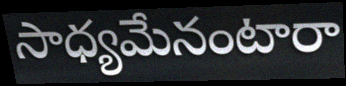
సాధ్యమేనంటారా